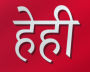
हेही